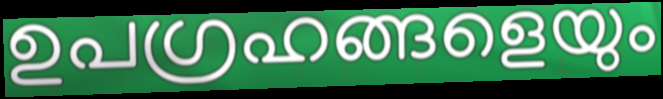
ഉപഗ്രഹങ്ങളെയും